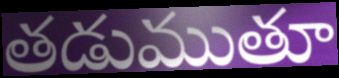
తడుముతూ